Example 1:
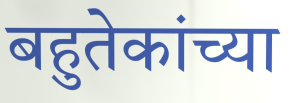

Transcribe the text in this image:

बहुतेकांच्या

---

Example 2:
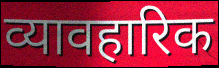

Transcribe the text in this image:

व्यावहारिक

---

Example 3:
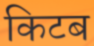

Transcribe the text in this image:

किटब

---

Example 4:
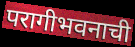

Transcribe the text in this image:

परागीभवनाची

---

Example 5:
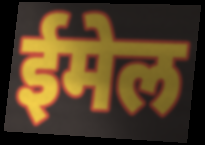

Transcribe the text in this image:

ईमेल